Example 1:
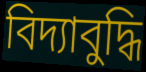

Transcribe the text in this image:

বিদ্যাবুদ্ধি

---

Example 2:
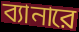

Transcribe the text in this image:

ব্যানারে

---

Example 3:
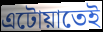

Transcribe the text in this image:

এটোয়াতেই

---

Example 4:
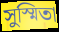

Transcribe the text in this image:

সুস্মিতা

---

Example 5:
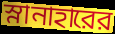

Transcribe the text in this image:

স্নানাহারের